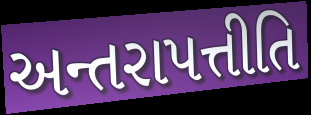
અન્તરાપત્તીતિ